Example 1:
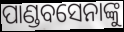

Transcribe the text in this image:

ପାଣ୍ଡବସେନାଙ୍କୁ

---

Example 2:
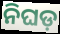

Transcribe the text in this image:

ନିଘଡ଼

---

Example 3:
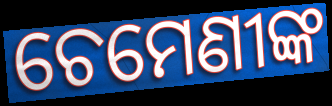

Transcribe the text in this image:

ଚେମେଣୀଙ୍କ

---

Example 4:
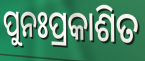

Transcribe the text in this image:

ପୁନଃପ୍ରକାଶିତ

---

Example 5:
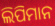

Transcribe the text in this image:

ଲିପିମାନ